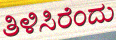
ತಿಳಿಸಿರೆಂದು